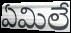
ఏమిలే